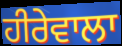
ਹੀਰੇਵਾਲਾ